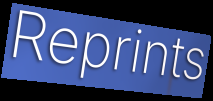
Reprints